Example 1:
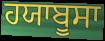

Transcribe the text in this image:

ਹਯਾਬੂਸਾ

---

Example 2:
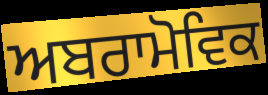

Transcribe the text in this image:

ਅਬਰਾਮੋਵਿਕ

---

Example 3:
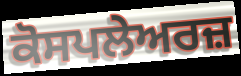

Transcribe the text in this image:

ਕੋਸਪਲੇਅਰਜ਼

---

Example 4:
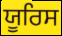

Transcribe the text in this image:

ਯੂਰਿਸ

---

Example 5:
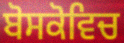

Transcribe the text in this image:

ਬੋਸਕੋਵਿਚ